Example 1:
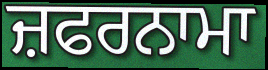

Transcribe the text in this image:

ਜ਼ਫਰਨਾਮਾ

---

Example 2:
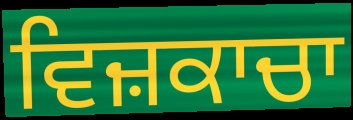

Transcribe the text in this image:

ਵਿਜ਼ਕਾਚਾ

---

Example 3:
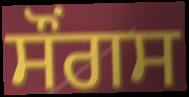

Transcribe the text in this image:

ਸੌਂਗਸ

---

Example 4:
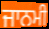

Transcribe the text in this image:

ਜਾਨਮੀ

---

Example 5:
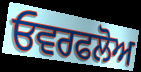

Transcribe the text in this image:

ਓਵਰਫਲੋਅ